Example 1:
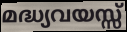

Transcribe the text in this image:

മദ്ധ്യവയസ്സ്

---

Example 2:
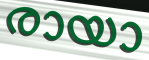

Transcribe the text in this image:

രായാ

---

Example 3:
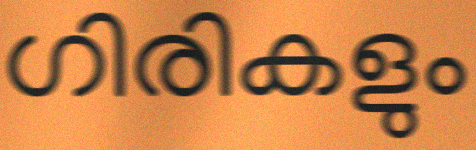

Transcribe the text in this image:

ഗിരികളും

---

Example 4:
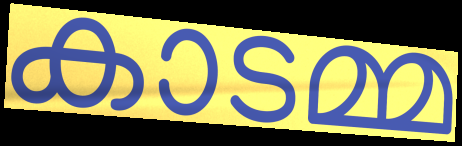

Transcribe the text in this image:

കാടമ്മ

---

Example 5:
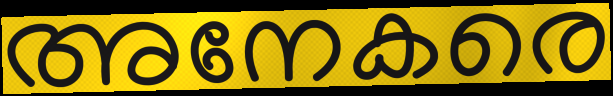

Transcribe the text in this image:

അനേകരെ